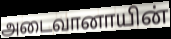
அடைவானாயின்